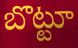
బొట్టూ